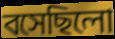
বসেছিলো